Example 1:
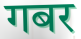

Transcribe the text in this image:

गबर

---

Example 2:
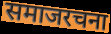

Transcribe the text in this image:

समाजरचना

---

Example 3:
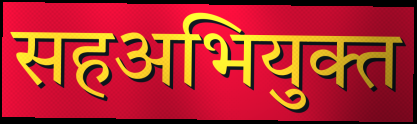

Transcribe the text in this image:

सहअभियुक्त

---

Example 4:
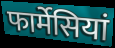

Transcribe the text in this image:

फार्मेसियां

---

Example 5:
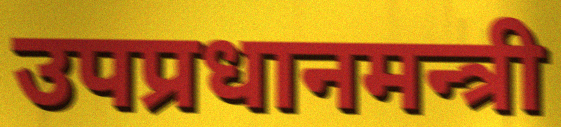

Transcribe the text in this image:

उपप्रधानमन्त्री